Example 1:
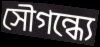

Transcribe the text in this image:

সৌগন্ধ্যে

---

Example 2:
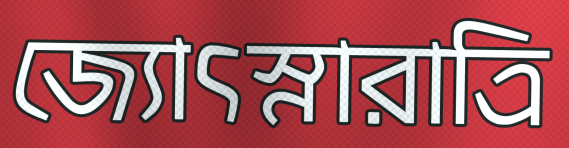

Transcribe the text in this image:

জ্যোৎস্নারাত্রি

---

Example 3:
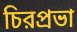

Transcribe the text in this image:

চিরপ্রভা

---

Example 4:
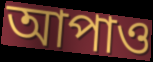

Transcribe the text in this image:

আপাও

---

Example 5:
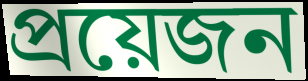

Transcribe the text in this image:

প্রয়েজন